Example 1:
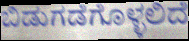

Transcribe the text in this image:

ಬಿಡುಗಡೆಗೊಳ್ಳಲಿದೆ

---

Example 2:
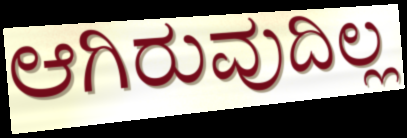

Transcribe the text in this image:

ಆಗಿರುವುದಿಲ್ಲ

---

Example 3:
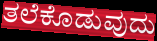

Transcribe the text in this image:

ತಲೆಕೊಡುವುದು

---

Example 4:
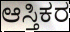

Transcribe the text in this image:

ಆಸ್ತಿಕರ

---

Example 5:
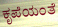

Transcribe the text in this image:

ಕೃಪೆಯಂತೆ